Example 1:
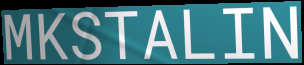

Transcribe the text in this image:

MKSTALIN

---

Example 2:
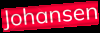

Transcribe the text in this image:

Johansen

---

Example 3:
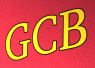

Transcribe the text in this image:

GCB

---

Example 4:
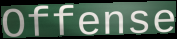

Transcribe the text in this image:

Offense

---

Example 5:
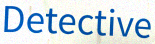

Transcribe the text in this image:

Detective